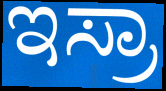
ಇಸ್ರಾ